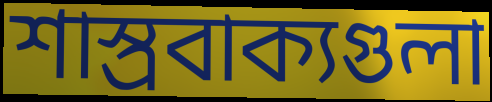
শাস্ত্রবাক্যগুলা